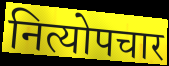
नित्योपचार